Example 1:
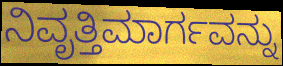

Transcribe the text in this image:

ನಿವೃತ್ತಿಮಾರ್ಗವನ್ನು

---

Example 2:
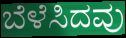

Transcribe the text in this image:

ಬೆಳೆಸಿದವು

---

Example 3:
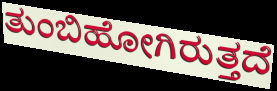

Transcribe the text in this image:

ತುಂಬಿಹೋಗಿರುತ್ತದೆ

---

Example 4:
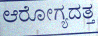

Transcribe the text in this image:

ಆರೋಗ್ಯದತ್ತ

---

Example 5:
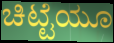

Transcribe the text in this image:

ಚಿಟ್ಟೆಯೂ